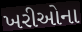
ખરીઓના